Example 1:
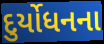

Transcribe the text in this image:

દુર્યોધનના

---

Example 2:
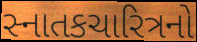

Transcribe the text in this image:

સ્નાતકચારિત્રનો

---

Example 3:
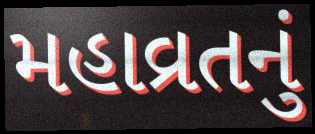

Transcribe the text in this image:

મહાવ્રતનું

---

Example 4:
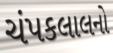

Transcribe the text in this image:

ચંપકલાલનો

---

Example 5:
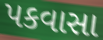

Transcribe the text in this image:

પકવાસા